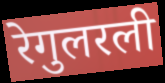
रेगुलरली